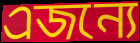
এজন্যে